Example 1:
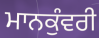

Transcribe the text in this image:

ਮਾਨਕੁੰਵਰੀ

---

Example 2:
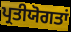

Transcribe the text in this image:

ਪ੍ਰਤੀਯੋਗਤਾਂ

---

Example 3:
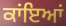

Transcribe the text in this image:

ਕਾਂਇਆਂ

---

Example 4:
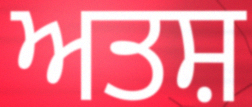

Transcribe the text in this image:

ਅਤਸ਼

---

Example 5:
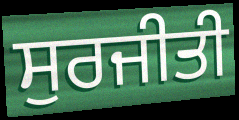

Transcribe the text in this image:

ਸੁਰਜੀਤੀ